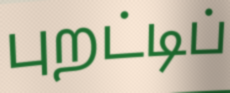
புறட்டிப்